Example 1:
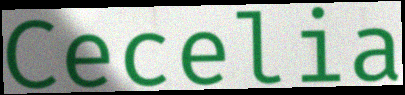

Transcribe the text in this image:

Cecelia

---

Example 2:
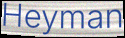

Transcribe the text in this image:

Heyman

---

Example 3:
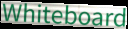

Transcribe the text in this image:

Whiteboard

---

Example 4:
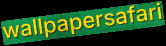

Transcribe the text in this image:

wallpapersafari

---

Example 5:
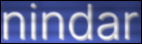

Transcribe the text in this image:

nindar